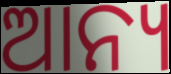
ଆନ୍ୟ